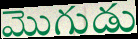
మొగుడు